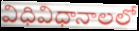
విధివిధానాలలో